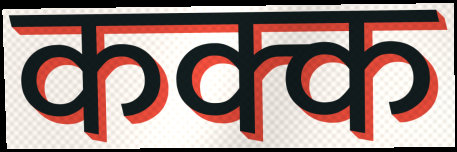
कक्क